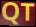
QT